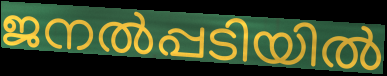
ജനൽപ്പടിയിൽ